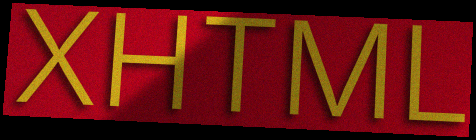
XHTML